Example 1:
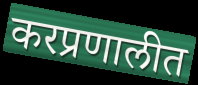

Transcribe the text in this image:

करप्रणालीत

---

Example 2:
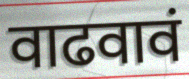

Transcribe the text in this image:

वाढवावं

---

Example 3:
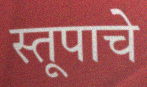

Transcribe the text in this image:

स्तूपाचे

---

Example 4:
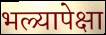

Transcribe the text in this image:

भल्यापेक्षा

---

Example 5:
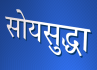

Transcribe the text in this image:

सोयसुद्धा